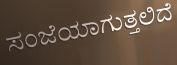
ಸಂಜೆಯಾಗುತ್ತಲಿದೆ